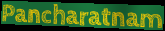
Pancharatnam